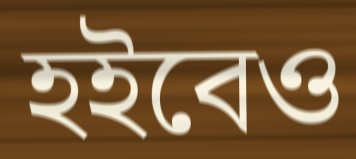
হইবেও